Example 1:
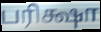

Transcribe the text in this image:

பரிக்ஷா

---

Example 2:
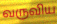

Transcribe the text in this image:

வருவிய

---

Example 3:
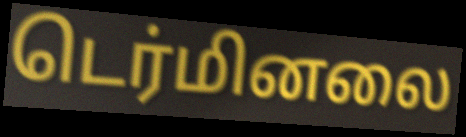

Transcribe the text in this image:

டெர்மினலை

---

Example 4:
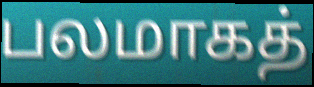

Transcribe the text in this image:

பலமாகத்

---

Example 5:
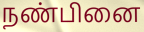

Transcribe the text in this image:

நண்பினை